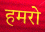
हमरो